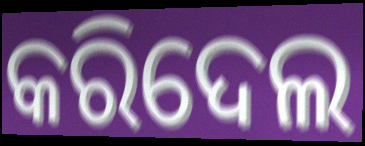
କରିଦେଲ